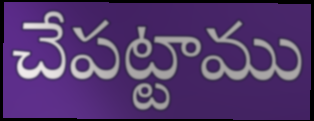
చేపట్టాము